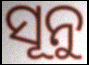
ସୂନୁ